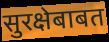
सुरक्षेबाबत